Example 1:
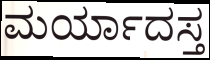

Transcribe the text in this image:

ಮರ್ಯಾದಸ್ತ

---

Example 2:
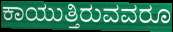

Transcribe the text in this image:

ಕಾಯುತ್ತಿರುವವರೂ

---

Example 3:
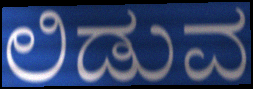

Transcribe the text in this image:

ಲಿಡುವ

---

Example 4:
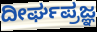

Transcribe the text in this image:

ದೀರ್ಘಪ್ರಜ್ಞ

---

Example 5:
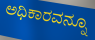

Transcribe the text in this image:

ಅಧಿಕಾರವನ್ನೂ